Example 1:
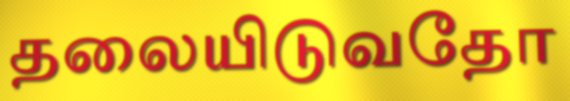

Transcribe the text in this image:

தலையிடுவதோ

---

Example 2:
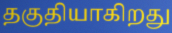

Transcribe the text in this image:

தகுதியாகிறது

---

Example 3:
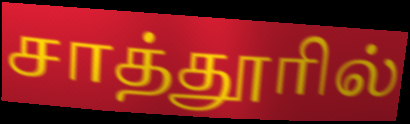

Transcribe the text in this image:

சாத்தூரில்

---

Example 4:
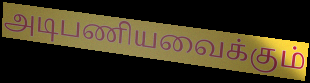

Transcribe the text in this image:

அடிபணியவைக்கும்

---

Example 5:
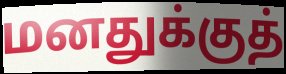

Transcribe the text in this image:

மனதுக்குத்